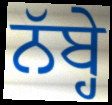
ਨੱਬ੍ਹੇ